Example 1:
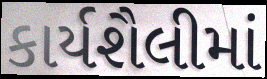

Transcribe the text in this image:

કાર્યશૈલીમાં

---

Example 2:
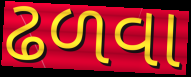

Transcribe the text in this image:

ઢળવા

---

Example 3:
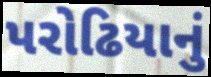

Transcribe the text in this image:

પરોઢિયાનું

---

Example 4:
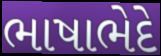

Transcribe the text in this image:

ભાષાભેદે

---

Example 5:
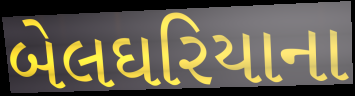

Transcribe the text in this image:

બેલઘરિયાના